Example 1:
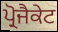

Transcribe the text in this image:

ਪ੍ਰੋਜੈਕੇਟ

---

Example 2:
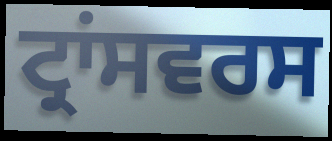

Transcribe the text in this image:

ਟ੍ਰਾਂਸਵਰਸ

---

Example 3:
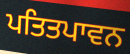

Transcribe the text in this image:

ਪਤਿਤਪਾਵਨ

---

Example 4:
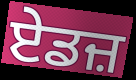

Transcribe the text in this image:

ਏਡਜ਼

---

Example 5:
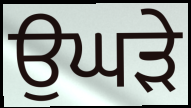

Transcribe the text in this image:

ਉਘੜੇ